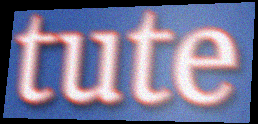
tute